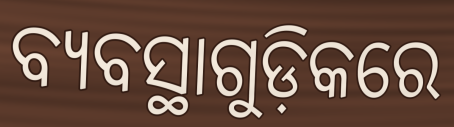
ବ୍ୟବସ୍ଥାଗୁଡ଼ିକରେ